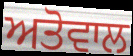
ਅਤੋਵਾਲ